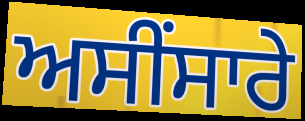
ਅਸੀਂਸਾਰੇ